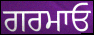
ਗਰਮਾਓ